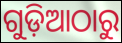
ଗୁଡ଼ିଆଠାରୁ